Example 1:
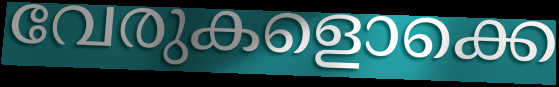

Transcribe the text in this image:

വേരുകളൊക്കെ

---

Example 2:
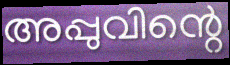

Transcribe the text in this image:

അപ്പുവിന്റെ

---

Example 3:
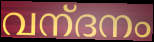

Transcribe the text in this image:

വന്‌ദനം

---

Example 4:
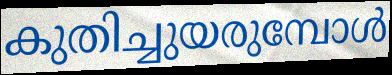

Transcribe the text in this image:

കുതിച്ചുയരുമ്പോൾ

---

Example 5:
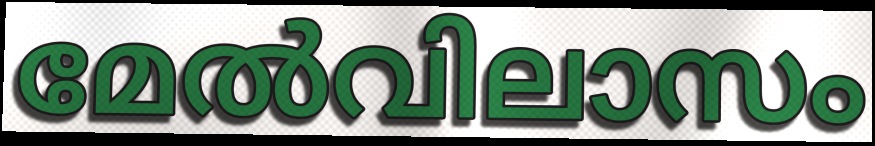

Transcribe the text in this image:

മേൽവിലാസം